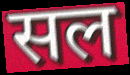
सल